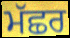
ਮੱਛਰ